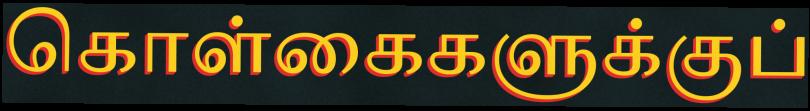
கொள்கைகளுக்குப்